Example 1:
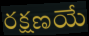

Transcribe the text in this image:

రక్షణయే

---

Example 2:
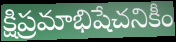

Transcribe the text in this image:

క్షిప్రమాభిషేచనికీం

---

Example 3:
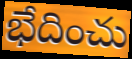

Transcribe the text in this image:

భేదించు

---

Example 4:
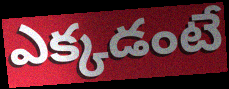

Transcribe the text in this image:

ఎక్కడంటే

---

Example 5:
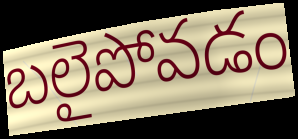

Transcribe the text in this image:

బలైపోవడం